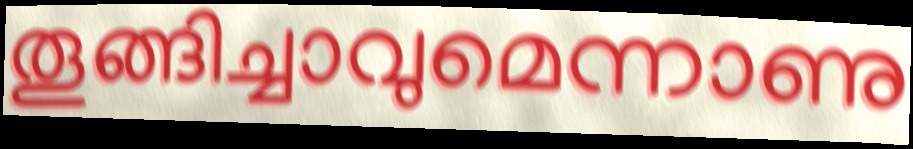
തൂങ്ങിച്ചാവുമെന്നാണു